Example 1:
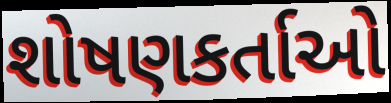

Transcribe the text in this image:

શોષણકર્તાઓ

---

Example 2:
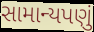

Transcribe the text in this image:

સામાન્યપણું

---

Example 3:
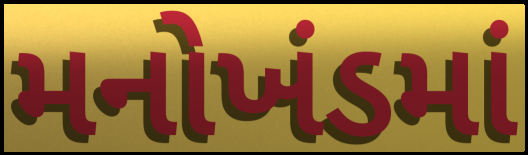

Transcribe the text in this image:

મનોખંડમાં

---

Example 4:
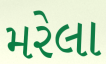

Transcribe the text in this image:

મરેલા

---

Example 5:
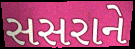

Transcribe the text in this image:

સસરાને